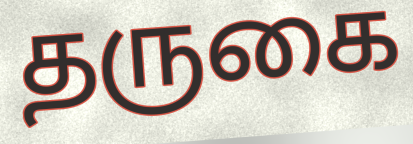
தருகை